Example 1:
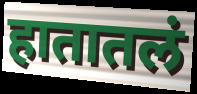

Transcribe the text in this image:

हातातलं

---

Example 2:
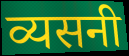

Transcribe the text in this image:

व्यसनी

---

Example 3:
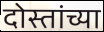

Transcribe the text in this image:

दोस्तांच्या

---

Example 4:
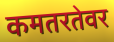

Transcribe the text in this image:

कमतरतेवर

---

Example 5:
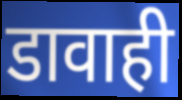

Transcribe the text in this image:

डावाही